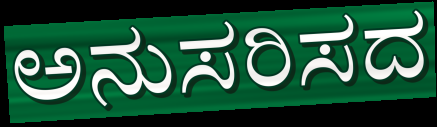
ಅನುಸರಿಸದ